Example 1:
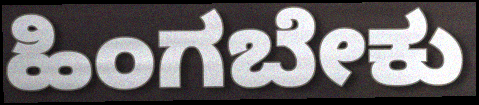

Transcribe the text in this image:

ಹಿಂಗಬೇಕು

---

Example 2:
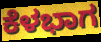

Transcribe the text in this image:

ಕೆಳಭಾಗ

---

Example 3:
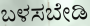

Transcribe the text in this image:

ಬಳಸಬೇಡಿ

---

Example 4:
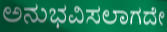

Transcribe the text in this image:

ಅನುಭವಿಸಲಾಗದೇ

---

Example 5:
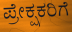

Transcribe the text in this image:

ಪ್ರೇಕ್ಷಕರಿಗೆ